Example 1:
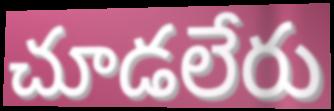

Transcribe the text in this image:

చూడలేరు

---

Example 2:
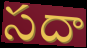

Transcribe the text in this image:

సదా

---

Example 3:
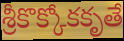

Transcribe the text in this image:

శ్రీకొక్కోకకృతే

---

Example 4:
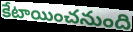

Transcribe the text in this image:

కేటాయించనుంది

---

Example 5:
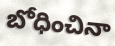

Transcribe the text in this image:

బోధించినా